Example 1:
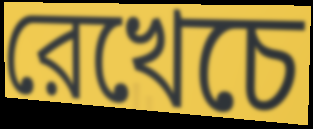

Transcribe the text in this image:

রেখেচে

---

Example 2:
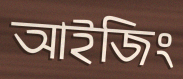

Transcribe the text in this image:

আইজিং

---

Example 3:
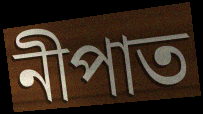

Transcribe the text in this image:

নীপাত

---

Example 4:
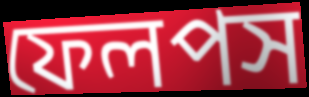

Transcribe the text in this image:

ফেলপস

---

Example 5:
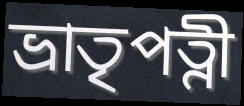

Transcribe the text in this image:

ভ্রাতৃপত্নী